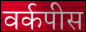
वर्कपीस